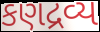
કણદ્રવ્ય